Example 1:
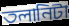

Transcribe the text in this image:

তলানিটা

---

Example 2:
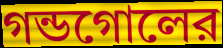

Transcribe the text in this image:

গন্ডগোলের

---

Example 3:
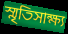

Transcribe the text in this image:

স্মৃতিসাক্ষ্য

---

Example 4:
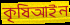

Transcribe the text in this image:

কৃষিআইন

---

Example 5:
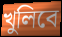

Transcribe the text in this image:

খুলিবে